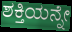
ಶಕ್ತಿಯನ್ನೇ